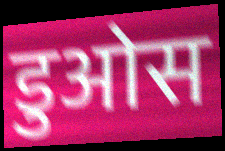
डुओस